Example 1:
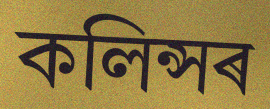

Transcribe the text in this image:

কলিন্সৰ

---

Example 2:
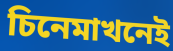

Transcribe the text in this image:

চিনেমাখনেই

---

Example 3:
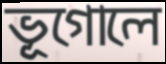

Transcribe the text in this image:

ভূগোলে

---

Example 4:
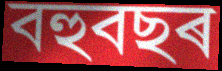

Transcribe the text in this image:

বহুবছৰ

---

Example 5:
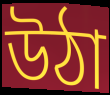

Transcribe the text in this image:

উঠা